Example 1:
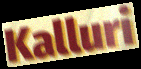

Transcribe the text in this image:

Kalluri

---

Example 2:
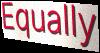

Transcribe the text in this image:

Equally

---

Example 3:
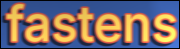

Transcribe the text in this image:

fastens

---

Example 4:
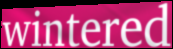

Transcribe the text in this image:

wintered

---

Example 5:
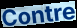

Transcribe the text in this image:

Contre